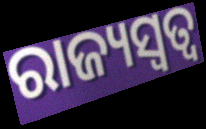
ରାଜ୍ୟସ୍ଵତ୍ଵ